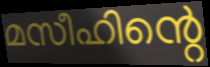
മസീഹിന്റെ